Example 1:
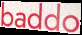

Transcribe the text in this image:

baddo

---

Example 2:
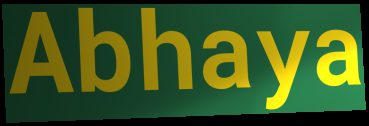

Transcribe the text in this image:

Abhaya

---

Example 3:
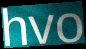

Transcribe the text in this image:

hvo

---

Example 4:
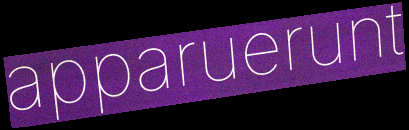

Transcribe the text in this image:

apparuerunt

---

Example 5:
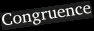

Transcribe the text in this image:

Congruence